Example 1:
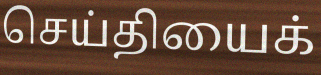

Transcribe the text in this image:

செய்தியைக்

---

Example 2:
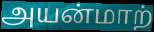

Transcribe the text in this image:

அயன்மாற்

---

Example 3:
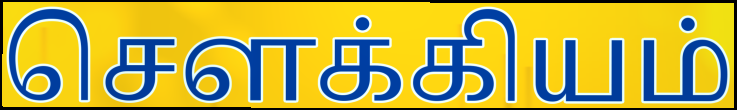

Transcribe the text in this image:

சௌக்கியம்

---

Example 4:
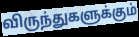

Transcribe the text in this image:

விருந்துகளுக்கும்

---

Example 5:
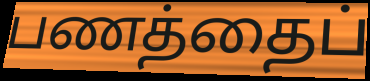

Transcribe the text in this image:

பணத்தைப்